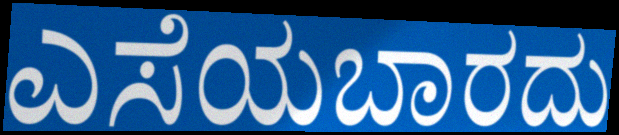
ಎಸೆಯಬಾರದು